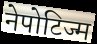
नेपोटिज्म